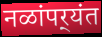
नळांपर्यंत